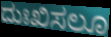
ದುಃಖಿಸಲೂ